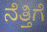
ನೆತ್ತಿಗೆ